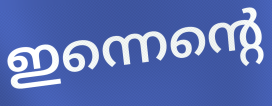
ഇന്നെന്റെ